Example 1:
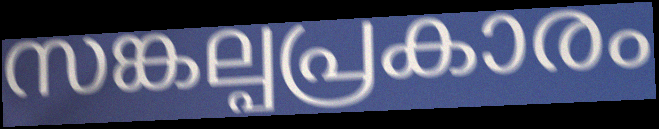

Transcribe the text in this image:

സങ്കല്പപ്രകാരം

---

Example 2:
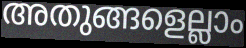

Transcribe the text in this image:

അതുങ്ങളെല്ലാം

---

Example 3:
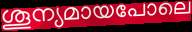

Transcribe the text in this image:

ശൂന്യമായപോലെ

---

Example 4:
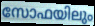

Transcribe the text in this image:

സോഫയിലും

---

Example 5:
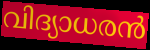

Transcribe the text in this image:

വിദ്യാധരൻ